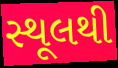
સ્થૂલથી